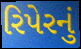
રિપેરનું